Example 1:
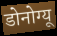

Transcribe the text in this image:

डोनोग्यू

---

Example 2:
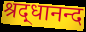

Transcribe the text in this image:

श्रद्धानन्द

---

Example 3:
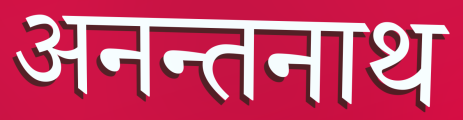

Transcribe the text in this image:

अनन्तनाथ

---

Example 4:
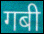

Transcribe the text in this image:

गबी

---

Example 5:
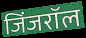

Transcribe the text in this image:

जिंजरॉल